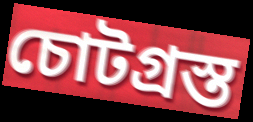
চোটগ্রস্ত